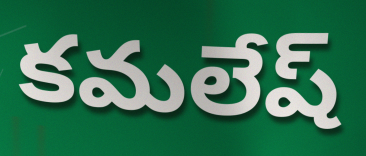
కమలేష్